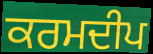
ਕਰਮਦੀਪ